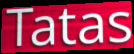
Tatas